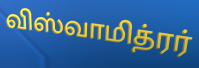
விஸ்வாமித்ரர்